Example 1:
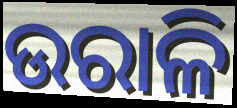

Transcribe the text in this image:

ଉରାଳି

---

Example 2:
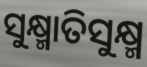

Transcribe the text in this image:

ସୁକ୍ଷ୍ମାତିସୁକ୍ଷ୍ମ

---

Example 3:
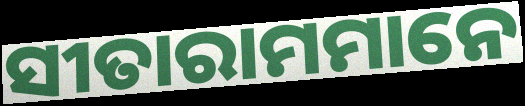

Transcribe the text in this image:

ସୀତାରାମମାନେ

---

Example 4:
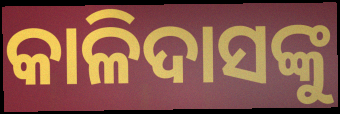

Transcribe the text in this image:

କାଳିଦାସଙ୍କୁ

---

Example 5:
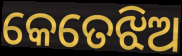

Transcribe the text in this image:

କେତେଝିଅ